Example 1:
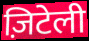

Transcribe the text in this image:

ज़िटेली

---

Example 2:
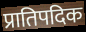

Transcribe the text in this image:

प्रातिपदिक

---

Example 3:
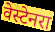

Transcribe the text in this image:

वेस्टेनरा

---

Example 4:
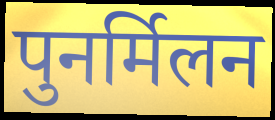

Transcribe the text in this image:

पुनर्मिलन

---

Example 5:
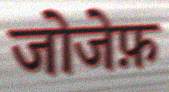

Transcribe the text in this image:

जोजेफ़